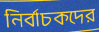
নির্বাচকদের